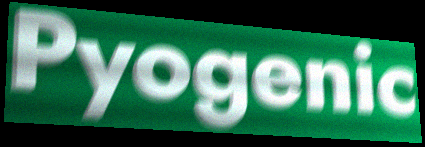
Pyogenic